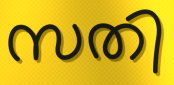
സതി